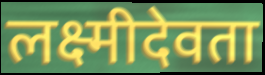
लक्ष्मीदेवता